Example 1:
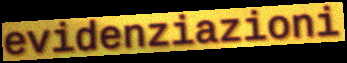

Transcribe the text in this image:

evidenziazioni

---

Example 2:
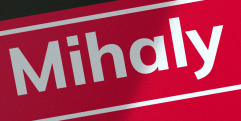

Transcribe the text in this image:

Mihaly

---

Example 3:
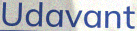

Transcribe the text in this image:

Udavant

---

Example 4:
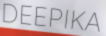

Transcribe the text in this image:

DEEPIKA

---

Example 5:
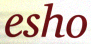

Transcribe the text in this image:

esho